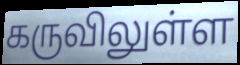
கருவிலுள்ள